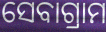
ସେବାଗ୍ରାମ